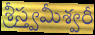
శ్రీస్త్వమీశ్వరీ